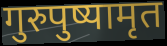
गुरुपुष्यामृत